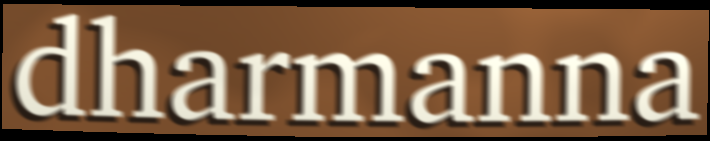
dharmanna